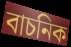
বাচনিক